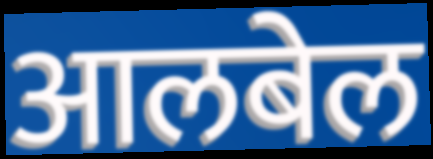
आलबेल